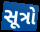
સૂત્રો